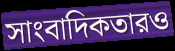
সাংবাদিকতারও